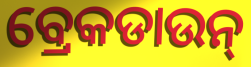
ବ୍ରେକଡାଉନ୍